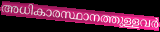
അധികാരസ്ഥാനത്തുള്ളവർ